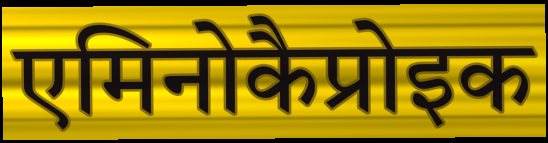
एमिनोकैप्रोइक